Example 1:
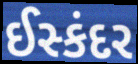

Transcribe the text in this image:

ઈસ્કંદર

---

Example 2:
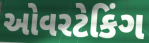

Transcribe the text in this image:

ઓવરટેકિંગ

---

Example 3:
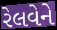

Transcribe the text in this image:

રેલવેને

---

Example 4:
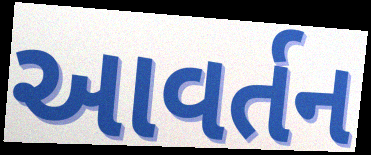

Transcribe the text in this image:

આવર્તન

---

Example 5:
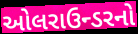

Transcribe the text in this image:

ઓલરાઉન્ડરનો